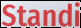
Standi